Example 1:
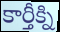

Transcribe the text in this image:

కార్తీక్ని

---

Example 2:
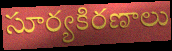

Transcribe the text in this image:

సూర్యకిరణాలు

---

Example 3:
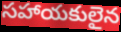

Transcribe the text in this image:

సహాయకులైన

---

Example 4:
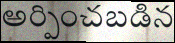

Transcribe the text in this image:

అర్పించబడిన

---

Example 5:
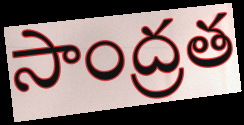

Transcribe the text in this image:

సాంద్రత